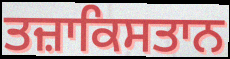
ਤਜ਼ਾਕਿਸਤਾਨ